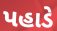
પહાડે